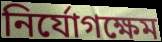
নির্যোগক্ষেম